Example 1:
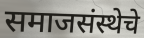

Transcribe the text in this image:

समाजसंस्थेचे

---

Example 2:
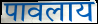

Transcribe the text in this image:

पावलाय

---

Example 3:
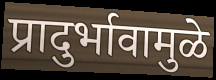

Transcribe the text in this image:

प्रादुर्भावामुळे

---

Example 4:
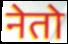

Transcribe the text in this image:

नेतो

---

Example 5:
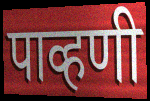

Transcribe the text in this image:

पाव्हणी